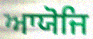
ਆਯੋਜਿ